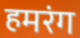
हमरंग